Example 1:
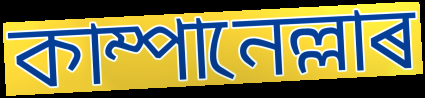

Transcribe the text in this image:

কাম্পানেল্লাৰ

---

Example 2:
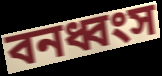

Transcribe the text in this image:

বনধ্বংস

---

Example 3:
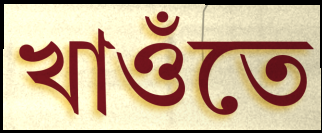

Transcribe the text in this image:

খাওঁতে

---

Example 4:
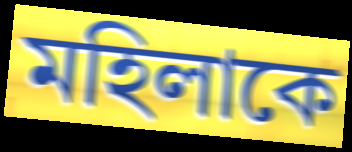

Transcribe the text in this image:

মহিলাকে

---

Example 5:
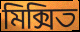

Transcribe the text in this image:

মিক্সিত